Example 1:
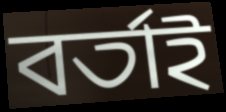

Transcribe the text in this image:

বৰ্তাই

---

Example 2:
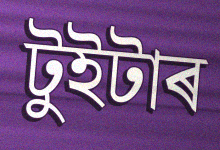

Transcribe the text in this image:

টুইটাৰ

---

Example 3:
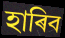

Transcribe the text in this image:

হাৰিব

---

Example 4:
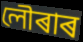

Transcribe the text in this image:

লৌৰাৰ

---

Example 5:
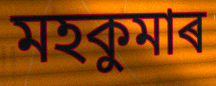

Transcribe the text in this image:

মহকুমাৰ